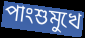
পাংশুমুখে